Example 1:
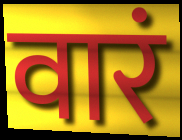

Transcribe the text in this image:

वारं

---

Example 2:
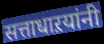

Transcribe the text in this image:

सत्ताधाऱयांनी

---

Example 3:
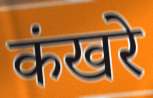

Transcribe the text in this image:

कंखरे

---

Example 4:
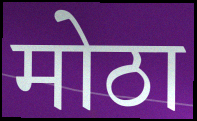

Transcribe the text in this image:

मोठा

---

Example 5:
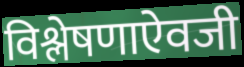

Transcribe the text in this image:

विश्लेषणाऐवजी